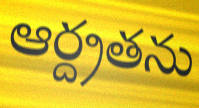
ఆర్ద్రతను